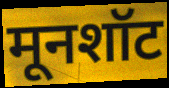
मूनशॉट